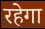
रहेगा